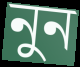
নুন